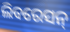
ଲିବରେସନ୍